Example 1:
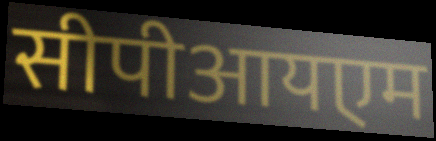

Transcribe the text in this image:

सीपीआयएम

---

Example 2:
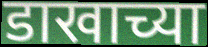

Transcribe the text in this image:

डाखाच्या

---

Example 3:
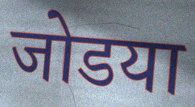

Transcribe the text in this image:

जोडया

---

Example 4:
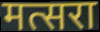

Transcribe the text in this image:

मत्सरा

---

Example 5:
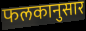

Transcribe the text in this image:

फलकानुसार